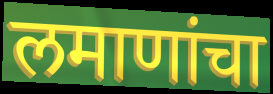
लमाणांचा